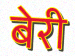
बेरी